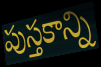
పుస్తకాన్ని